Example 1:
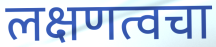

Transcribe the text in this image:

लक्षणत्वचा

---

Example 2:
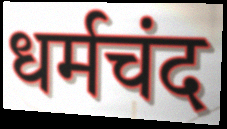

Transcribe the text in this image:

धर्मचंद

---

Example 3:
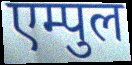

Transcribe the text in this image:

एम्पुल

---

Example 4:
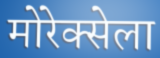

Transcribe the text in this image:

मोरेक्सेला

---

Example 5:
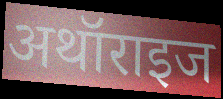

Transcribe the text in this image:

अथॉराइज